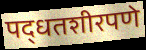
पद्धतशीरपणे